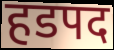
हडपद